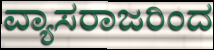
ವ್ಯಾಸರಾಜರಿಂದ